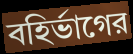
বহির্ভাগের